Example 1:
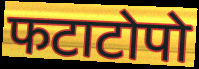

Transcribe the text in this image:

फटाटोपो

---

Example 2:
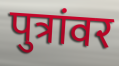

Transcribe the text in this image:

पुत्रांवर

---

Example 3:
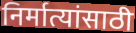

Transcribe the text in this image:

निर्मात्यांसाठी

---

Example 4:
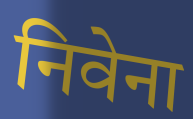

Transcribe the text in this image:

निवेना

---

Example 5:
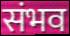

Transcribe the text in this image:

संभव